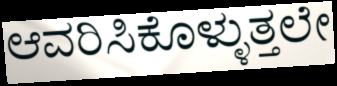
ಆವರಿಸಿಕೊಳ್ಳುತ್ತಲೇ